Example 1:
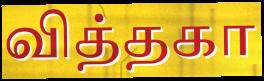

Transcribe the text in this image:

வித்தகா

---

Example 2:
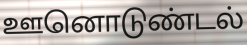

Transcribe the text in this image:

ஊனொடுண்டல்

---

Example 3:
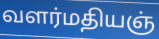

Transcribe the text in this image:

வளர்மதியஞ்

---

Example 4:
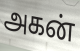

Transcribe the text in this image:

அகன்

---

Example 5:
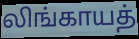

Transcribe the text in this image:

லிங்காயத்